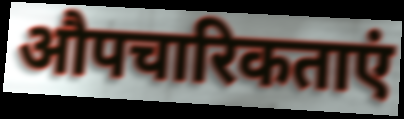
औपचारिकताएं